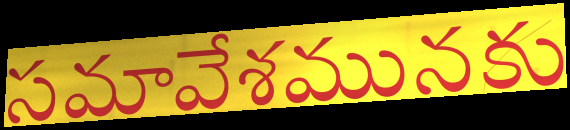
సమావేశమునకు